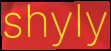
shyly